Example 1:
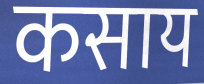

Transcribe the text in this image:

कसाय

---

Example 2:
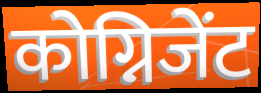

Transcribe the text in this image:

कोग्निजेंट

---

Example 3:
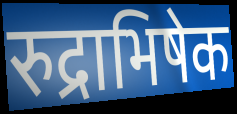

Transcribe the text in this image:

रुद्राभिषेक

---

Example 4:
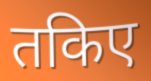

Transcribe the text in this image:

तकिए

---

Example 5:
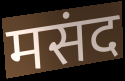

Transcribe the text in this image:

मसंद